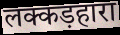
लक्कड़हारा